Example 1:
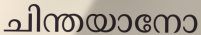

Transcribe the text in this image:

ചിന്തയാനോ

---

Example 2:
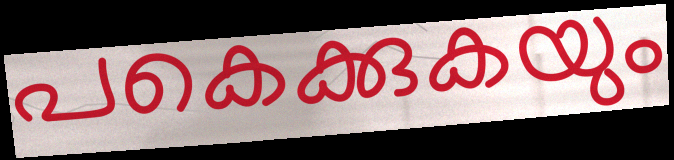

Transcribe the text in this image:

പകെക്കുകയും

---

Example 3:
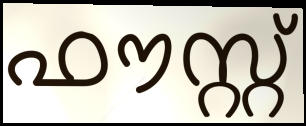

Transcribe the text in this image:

ഫൗസ്റ്റ്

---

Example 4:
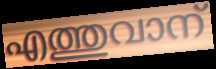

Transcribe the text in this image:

എത്തുവാന്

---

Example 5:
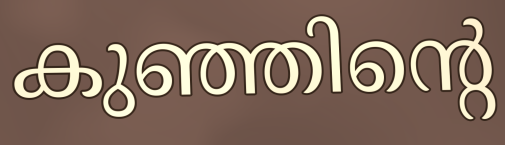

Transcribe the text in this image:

കുഞ്ഞിന്റെ